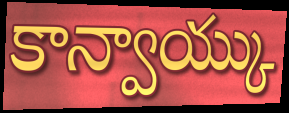
కాన్వాయ్కు